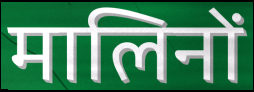
मालिनों